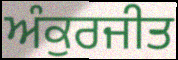
ਅੰਕੁਰਜੀਤ